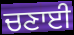
ਚਣਾਈ